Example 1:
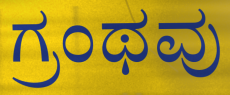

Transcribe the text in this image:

ಗ್ರಂಥವು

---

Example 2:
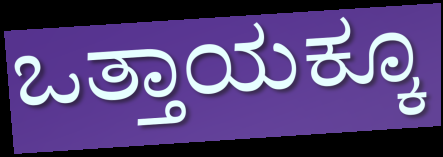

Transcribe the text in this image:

ಒತ್ತಾಯಕ್ಕೂ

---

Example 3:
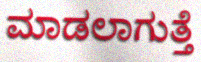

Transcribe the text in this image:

ಮಾಡಲಾಗುತ್ತೆ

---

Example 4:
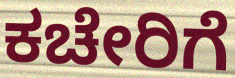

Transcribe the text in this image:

ಕಚೇರಿಗೆ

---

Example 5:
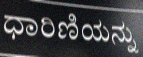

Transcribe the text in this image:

ಧಾರಿಣಿಯನ್ನು